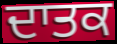
ਦਾਤਕ